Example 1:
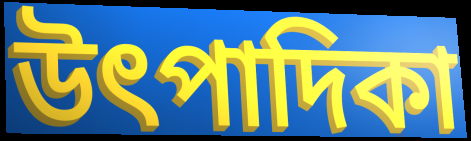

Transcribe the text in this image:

উৎপাদিকা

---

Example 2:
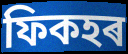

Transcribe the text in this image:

ফিকহৰ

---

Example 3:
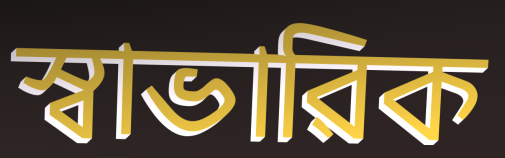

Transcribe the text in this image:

স্বাভাৱিক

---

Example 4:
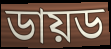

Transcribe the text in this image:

ডায়ড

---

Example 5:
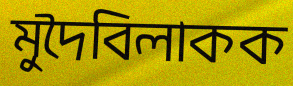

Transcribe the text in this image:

মুদৈবিলাকক